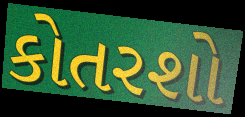
કોતરશો